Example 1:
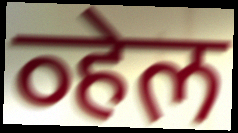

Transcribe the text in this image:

व्हेल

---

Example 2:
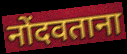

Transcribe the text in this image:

नोंदवताना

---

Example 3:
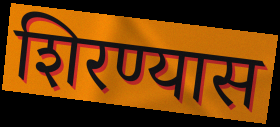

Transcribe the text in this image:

शिरण्यास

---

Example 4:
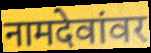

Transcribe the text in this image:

नामदेवांवर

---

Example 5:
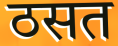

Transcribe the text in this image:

ठसत